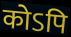
कोऽपि